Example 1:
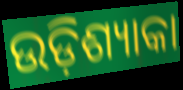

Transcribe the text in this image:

ଉଡ଼ିଶ୍ୟାକା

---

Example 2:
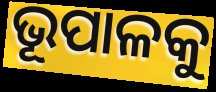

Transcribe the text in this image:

ଭୂପାଳକୁ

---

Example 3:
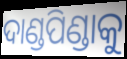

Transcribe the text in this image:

ଦାଣ୍ଡପିଣ୍ଡାକୁ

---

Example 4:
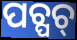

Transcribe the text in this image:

ପଚ୍ପଚ୍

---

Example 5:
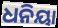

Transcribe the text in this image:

ଧନିୟା